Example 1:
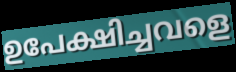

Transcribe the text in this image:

ഉപേക്ഷിച്ചവളെ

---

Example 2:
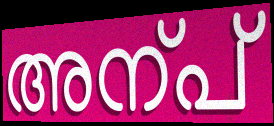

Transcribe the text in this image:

അന്പ്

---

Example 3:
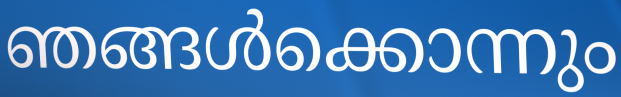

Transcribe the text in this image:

ഞങ്ങൾക്കൊന്നും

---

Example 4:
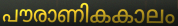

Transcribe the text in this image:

പൗരാണികകാലം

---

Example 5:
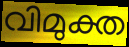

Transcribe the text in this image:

വിമുക്ത